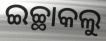
ଇଚ୍ଛାକଲୁ